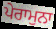
ਪੇਰਾਮੁਨਾ